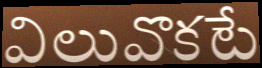
విలువొకటే